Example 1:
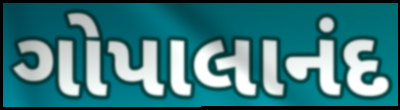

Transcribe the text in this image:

ગોપાલાનંદ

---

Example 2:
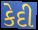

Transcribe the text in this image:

કેદી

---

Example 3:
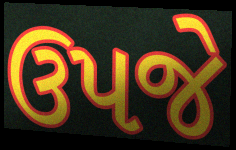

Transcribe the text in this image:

ઉપજે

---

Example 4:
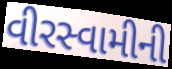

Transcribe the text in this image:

વીરસ્વામીની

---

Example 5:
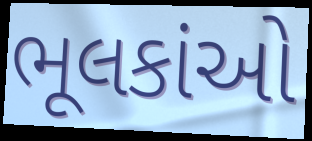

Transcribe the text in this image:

ભૂલકાંઓ